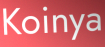
Koinya